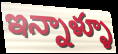
ఇన్నాళ్ళూ